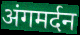
अंगमर्दन